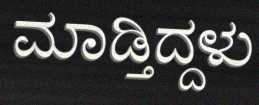
ಮಾಡ್ತಿದ್ದಳು